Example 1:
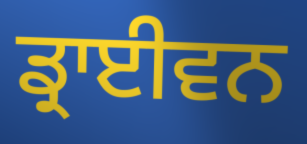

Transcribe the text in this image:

ਡ੍ਰਾਈਵਨ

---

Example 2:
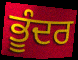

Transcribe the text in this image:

ਭੂੰਦਰ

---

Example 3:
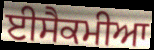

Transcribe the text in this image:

ਈਸੈਕਮੀਆ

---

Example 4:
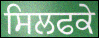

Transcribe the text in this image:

ਸਿਲਫਕੇ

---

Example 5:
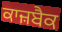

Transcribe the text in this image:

ਕਾਜ਼ਬੈਕ